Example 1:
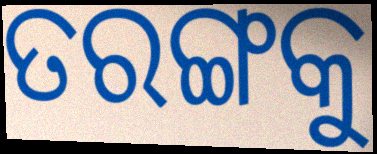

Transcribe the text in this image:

ତରଙ୍ଗକୁ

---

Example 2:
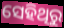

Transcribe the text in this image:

ସେହିଥିରୁ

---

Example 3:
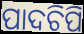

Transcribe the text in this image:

ପାଦଚିପି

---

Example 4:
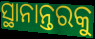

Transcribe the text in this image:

ସ୍ଥାନାନ୍ତରକୁ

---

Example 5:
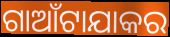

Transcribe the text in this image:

ଗାଆଁଟାଯାକର